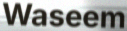
Waseem